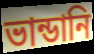
ভান্ডানি